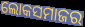
ଲୋକସମାଜର